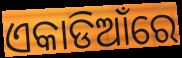
ଏକାଡିଆଁରେ